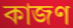
কাজণ